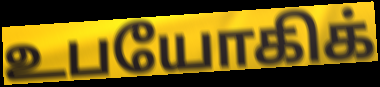
உபயோகிக்